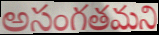
అసంగతమని